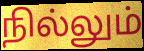
நில்லும்